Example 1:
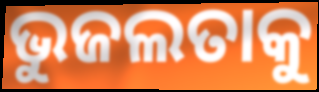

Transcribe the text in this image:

ଭୁଜଲତାକୁ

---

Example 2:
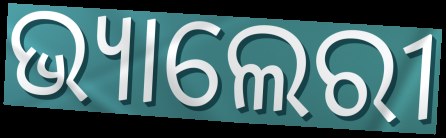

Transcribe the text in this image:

ଭ୍ୟାଲେରୀ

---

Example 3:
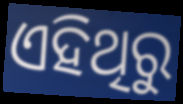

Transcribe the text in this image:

ଏହିଥିରୁ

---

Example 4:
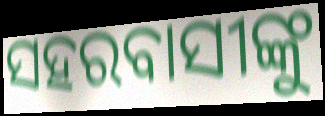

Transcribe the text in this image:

ସହରବାସୀଙ୍କୁ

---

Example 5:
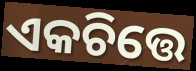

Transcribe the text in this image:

ଏକଚିତ୍ତେ